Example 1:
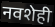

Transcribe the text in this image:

नवशेही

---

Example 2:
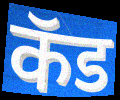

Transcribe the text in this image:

कॅड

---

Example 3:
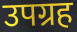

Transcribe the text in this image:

उपग्रह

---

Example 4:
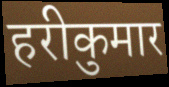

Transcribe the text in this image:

हरीकुमार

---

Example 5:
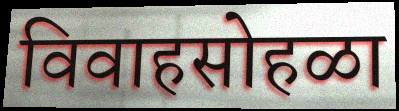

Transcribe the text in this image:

विवाहसोहळा